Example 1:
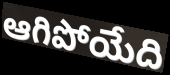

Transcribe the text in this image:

ఆగిపోయేది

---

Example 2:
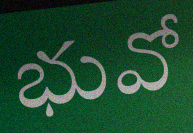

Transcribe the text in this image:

భువో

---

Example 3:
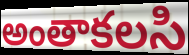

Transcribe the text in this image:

అంతాకలసి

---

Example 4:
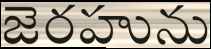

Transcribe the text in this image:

జెరహును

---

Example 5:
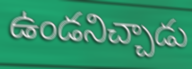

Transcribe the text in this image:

ఉండనిచ్చాడు